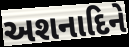
અશનાદિને